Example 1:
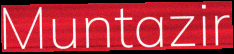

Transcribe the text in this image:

Muntazir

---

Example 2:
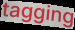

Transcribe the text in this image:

tagging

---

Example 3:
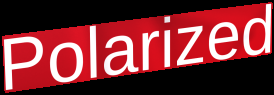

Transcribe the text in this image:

Polarized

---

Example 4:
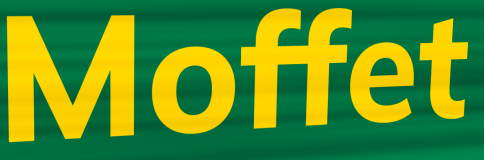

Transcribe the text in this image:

Moffet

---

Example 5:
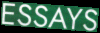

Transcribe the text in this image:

ESSAYS